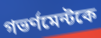
গভর্ণমেন্টকে